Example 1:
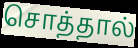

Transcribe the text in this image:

சொத்தால்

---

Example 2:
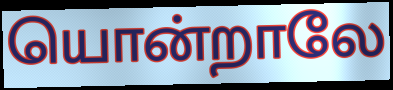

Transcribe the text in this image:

யொன்றாலே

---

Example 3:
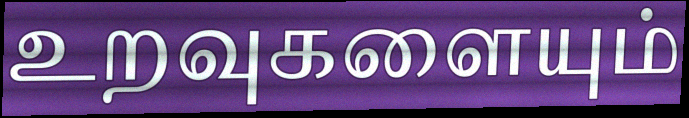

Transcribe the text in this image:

உறவுகளையும்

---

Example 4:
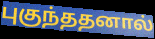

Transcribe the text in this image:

புகுந்ததனால்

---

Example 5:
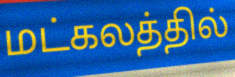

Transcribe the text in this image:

மட்கலத்தில்